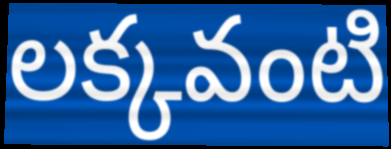
లక్కవంటి